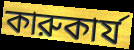
কাৰুকাৰ্য